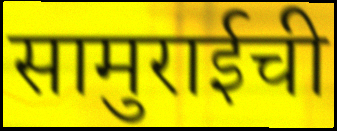
सामुराईची